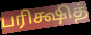
பரிக்ஷித்